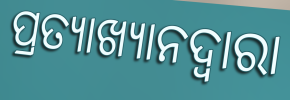
ପ୍ରତ୍ୟାଖ୍ୟାନଦ୍ଵାରା